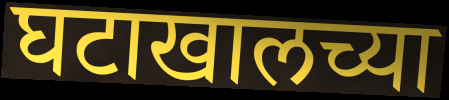
घटाखालच्या